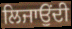
ਲਿਜਾਉਂਦੀ